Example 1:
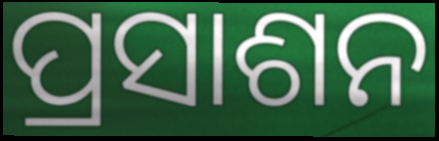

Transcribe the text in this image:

ପ୍ରସାଶନ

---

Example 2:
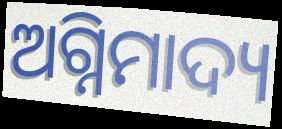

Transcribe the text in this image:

ଅଗ୍ନିମାଦ୍ୟ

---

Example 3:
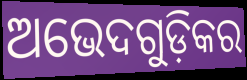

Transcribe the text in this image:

ଅଭେଦଗୁଡ଼ିକର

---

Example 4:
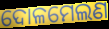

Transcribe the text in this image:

ଦୋଳମେଲଣ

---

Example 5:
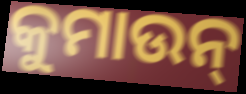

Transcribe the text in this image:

କୁମାଉନ୍